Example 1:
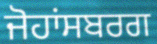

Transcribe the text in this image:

ਜੋਹਾਂਸਬਰਗ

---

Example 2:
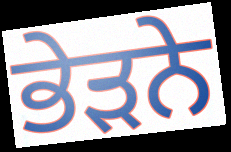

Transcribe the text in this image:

ਭੇੜਨੇ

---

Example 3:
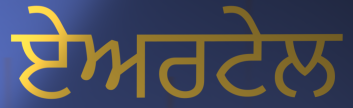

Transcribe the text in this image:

ਏਅਰਟੇਲ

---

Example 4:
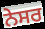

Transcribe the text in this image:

ਨੇਸਰ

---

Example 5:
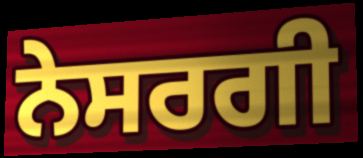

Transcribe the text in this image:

ਨੇਸਰਗੀ